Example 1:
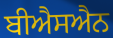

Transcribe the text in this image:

ਬੀਐਸਐਨ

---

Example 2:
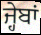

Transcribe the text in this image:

ਜ੍ਹੇਬਾਂ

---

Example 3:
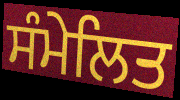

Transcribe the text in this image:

ਸੰਮੇਲਿਤ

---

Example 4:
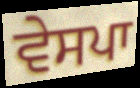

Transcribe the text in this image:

ਵੇਸਪਾ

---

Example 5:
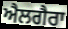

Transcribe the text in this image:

ਐਲਗੈਰਾ